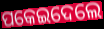
ପକେଇଦେଲେ